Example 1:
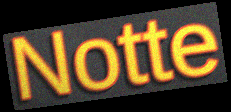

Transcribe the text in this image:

Notte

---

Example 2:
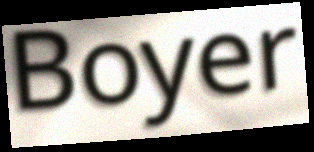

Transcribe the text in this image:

Boyer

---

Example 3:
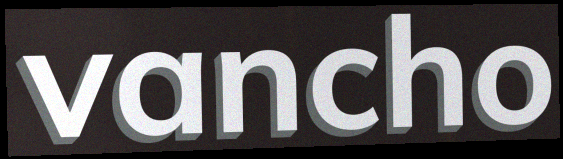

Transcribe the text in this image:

vancho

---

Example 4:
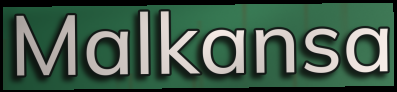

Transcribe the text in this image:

Malkansa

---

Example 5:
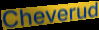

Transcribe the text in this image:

Cheverud